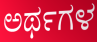
ಅರ್ಥಗಳ